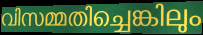
വിസമ്മതിച്ചെങ്കിലും